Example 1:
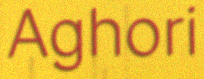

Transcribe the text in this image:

Aghori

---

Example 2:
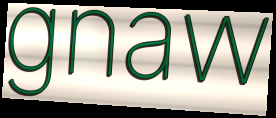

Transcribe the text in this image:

gnaw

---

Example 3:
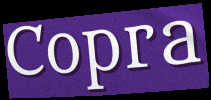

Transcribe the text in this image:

Copra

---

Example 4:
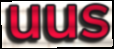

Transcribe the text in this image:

uus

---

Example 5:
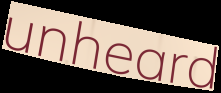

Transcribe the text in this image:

unheard